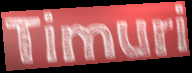
Timuri